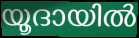
യൂദായിൽ